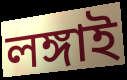
লঙ্গাই